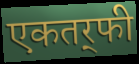
एकतर्फी